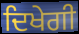
ਦਿਖੇਗੀ